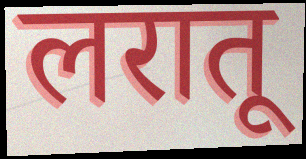
लरातू